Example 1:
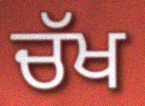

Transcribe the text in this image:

ਚੱਖ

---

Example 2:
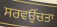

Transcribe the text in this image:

ਸਰਵਉੱਚਤਾ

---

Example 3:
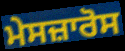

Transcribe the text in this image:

ਮੇਸਜ਼ਾਰੋਸ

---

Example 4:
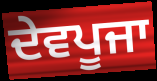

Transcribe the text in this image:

ਦੇਵਪੂਜਾ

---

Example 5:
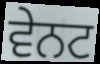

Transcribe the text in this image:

ਵੇਨਟ